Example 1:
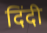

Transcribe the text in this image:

दिंदी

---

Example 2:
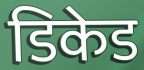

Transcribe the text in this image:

डिकेड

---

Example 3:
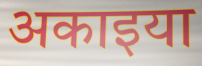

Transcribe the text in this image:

अकाइया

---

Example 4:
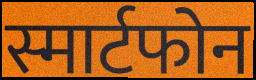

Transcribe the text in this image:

स्‍मार्टफोन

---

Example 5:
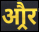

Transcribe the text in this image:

औ्रर